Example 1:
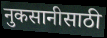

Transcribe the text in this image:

नुकसानीसाठी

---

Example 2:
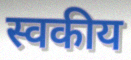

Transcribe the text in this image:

स्वकीय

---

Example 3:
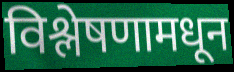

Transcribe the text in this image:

विश्लेषणामधून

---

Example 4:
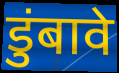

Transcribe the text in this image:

डुंबावे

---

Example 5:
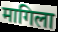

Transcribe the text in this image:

मागिला